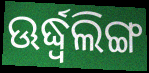
ଊର୍ଦ୍ଧ୍ୱଲିଙ୍ଗ